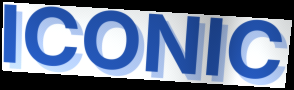
ICONIC